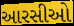
આરસીઓ